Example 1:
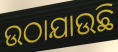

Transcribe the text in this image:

ଉଠାଯାଉଛି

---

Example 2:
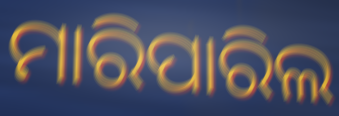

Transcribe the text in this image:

ମାରିପାରିଲ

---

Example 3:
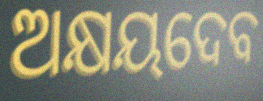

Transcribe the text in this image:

ଅକ୍ଷୟଦେବ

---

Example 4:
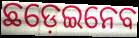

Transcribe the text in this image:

ଛଡ଼େଇନେବ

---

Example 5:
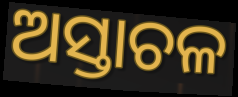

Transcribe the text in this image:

ଅସ୍ତାଚଳ